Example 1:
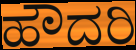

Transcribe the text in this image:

ಹೌದರಿ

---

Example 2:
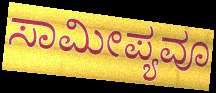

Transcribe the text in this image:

ಸಾಮೀಪ್ಯವೂ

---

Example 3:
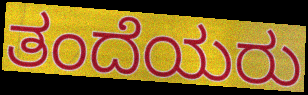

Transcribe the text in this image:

ತಂದೆಯರು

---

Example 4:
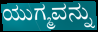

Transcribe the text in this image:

ಯುಗ್ಮವನ್ನು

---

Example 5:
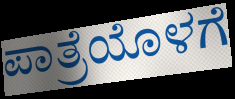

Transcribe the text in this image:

ಪಾತ್ರೆಯೊಳಗೆ